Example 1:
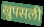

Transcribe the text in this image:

खुपसली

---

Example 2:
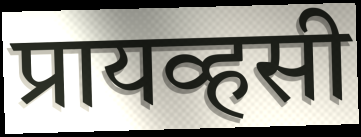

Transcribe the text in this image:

प्रायव्हसी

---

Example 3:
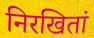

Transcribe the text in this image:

निरखितां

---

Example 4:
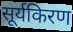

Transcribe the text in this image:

सूर्यकिरण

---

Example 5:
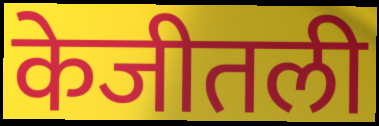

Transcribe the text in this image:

केजीतली